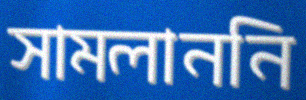
সামলাননি